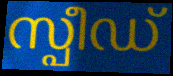
സ്പീഡ്